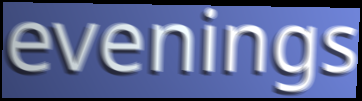
evenings